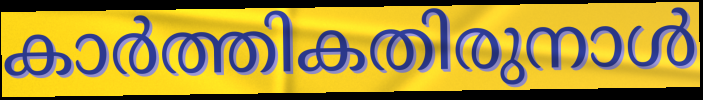
കാർത്തികതിരുനാൾ